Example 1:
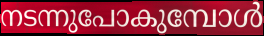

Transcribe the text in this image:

നടന്നുപോകുമ്പോൾ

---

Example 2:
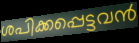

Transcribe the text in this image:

ശപിക്കപ്പെട്ടവൻ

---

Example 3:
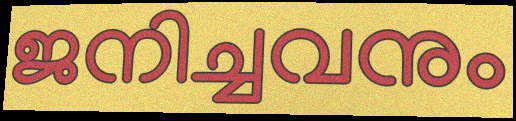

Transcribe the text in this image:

ജനിച്ചവനും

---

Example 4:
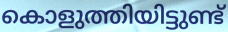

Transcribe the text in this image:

കൊളുത്തിയിട്ടുണ്ട്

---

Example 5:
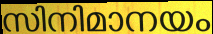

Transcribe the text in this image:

സിനിമാനയം